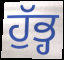
ਹੁੱਭ੍ਹ